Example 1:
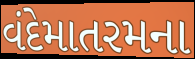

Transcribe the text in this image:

વંદેમાતરમના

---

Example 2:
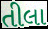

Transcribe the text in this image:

તીલા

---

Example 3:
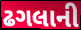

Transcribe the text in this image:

ઢગલાની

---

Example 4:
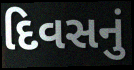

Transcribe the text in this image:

દિવસનું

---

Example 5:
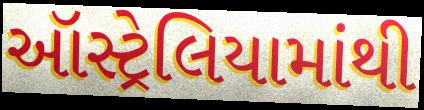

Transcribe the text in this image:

ઑસ્ટ્રેલિયામાંથી